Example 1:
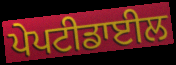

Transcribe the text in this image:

ਪੇਪਟੀਡਾਈਲ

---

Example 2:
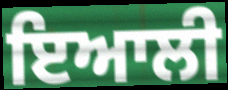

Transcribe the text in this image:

ਇਆਲੀ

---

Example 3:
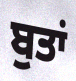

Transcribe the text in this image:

ਬੁਤਾਂ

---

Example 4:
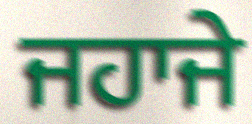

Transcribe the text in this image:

ਜਹਾਜੇ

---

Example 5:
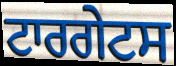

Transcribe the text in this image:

ਟਾਰਗੇਟਸ